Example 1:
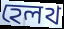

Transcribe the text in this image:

হেলথ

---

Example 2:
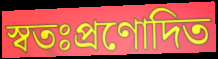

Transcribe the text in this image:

স্বতঃপ্রণোদিত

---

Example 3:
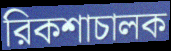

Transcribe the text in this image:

রিকশাচালক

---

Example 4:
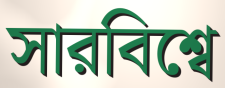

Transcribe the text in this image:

সারবিশ্বে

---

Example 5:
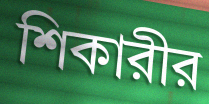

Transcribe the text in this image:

শিকারীর